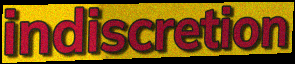
indiscretion